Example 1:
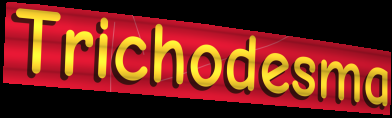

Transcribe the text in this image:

Trichodesma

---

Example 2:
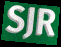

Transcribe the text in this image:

SJR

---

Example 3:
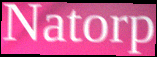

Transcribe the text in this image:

Natorp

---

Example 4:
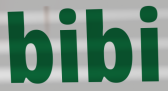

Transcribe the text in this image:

bibi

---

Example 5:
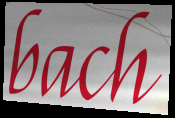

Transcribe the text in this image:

bach